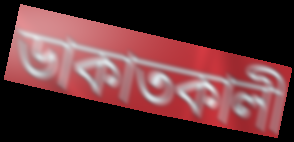
ডাকাতকালী